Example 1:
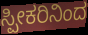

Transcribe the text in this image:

ಸ್ಪೀಕರಿನಿಂದ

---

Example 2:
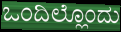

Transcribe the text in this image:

ಒಂದಿಲ್ಲೊಂದು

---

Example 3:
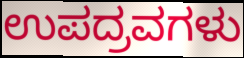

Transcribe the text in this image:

ಉಪದ್ರವಗಳು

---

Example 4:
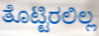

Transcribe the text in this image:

ತೊಟ್ಟಿರಲಿಲ್ಲ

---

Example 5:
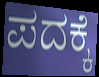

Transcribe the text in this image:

ಪದಕ್ಕೆ